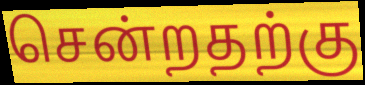
சென்றதற்கு